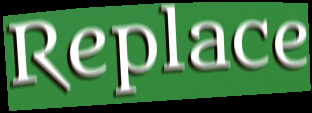
Replace